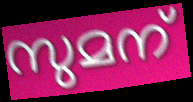
സുമന്